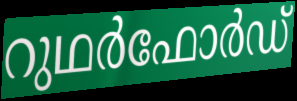
റുഥർഫോർഡ്